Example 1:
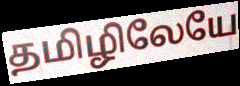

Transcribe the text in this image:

தமிழிலேயே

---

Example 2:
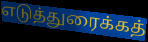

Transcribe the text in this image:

எடுத்துரைக்கத்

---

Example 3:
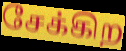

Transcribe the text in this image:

சேக்கிற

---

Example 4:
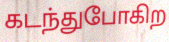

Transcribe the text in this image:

கடந்துபோகிற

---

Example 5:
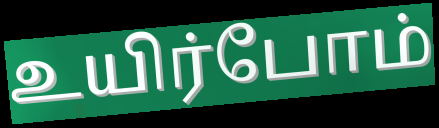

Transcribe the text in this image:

உயிர்போம்